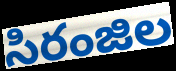
సిరంజిల